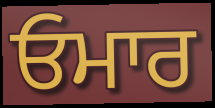
ਓਮਾਰ